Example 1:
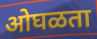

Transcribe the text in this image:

ओघळता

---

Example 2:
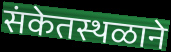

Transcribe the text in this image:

संकेतस्थळाने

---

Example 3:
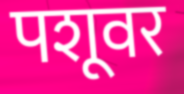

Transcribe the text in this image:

पशूवर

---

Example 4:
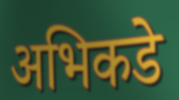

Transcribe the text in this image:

अभिकडे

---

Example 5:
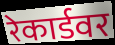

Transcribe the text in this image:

रेकार्डवर